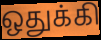
ஒதுக்கி